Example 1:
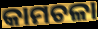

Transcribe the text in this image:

କାମଚଳା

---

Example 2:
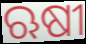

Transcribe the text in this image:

ଋଷୀ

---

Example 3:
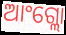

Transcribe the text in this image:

ଆଂଗ୍ଲୋ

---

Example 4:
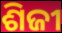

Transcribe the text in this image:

ଶିଜୀ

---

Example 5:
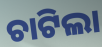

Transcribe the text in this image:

ଚାଟିଲା